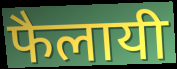
फैलायी